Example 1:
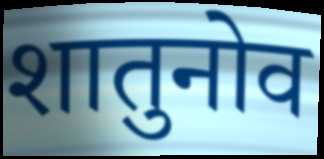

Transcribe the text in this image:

शातुनोव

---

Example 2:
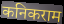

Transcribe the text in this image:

कनिकराम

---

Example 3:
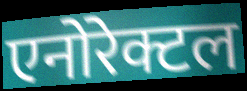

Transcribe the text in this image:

एनोरेक्टल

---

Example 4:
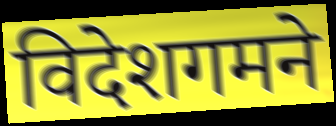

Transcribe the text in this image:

विदेशगमने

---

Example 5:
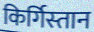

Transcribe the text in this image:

किर्गिस्‍तान